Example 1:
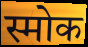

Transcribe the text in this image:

स्मोक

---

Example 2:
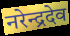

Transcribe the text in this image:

नरेन्द्रदेव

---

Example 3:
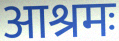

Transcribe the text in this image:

आश्रमः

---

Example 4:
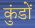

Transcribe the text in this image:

कुंडों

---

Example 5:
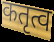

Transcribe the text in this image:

कतृत्व